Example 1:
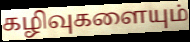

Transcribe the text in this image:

கழிவுகளையும்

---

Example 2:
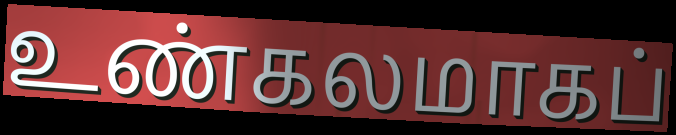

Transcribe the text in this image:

உண்கலமாகப்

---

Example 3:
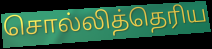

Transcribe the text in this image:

சொல்லித்தெரிய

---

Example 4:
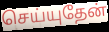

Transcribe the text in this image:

செய்யுதேன்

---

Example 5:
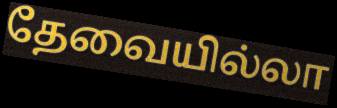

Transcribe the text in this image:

தேவையில்லா